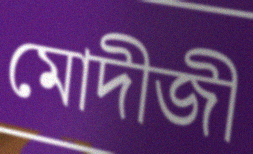
মোদীজী